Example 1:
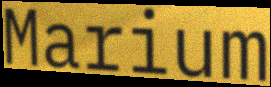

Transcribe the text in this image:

Marium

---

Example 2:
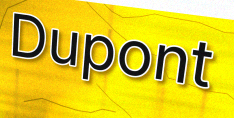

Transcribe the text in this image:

Dupont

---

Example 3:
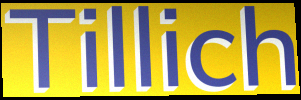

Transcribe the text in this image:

Tillich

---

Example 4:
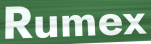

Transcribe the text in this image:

Rumex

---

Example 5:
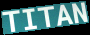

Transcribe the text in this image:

TITAN